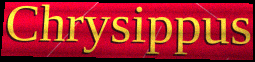
Chrysippus